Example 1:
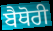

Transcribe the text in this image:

ਬੈਥੋਰੀ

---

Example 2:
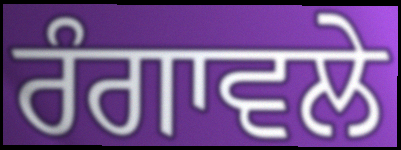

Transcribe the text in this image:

ਰੰਗਾਵਲੇ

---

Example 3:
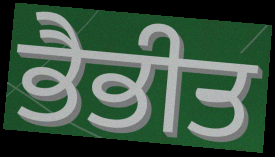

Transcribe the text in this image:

ਭੈਭੀਤ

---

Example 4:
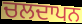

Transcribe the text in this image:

ਚਲਦਾਪਨ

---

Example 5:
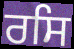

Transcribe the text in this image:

ਰਸਿ